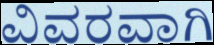
ವಿವರವಾಗಿ